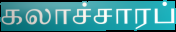
கலாச்சாரப்